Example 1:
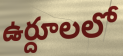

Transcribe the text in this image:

ఉర్దూలలో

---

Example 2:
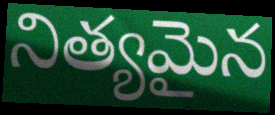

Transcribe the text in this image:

నిత్యమైన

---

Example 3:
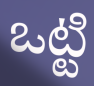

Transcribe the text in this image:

ఒట్టి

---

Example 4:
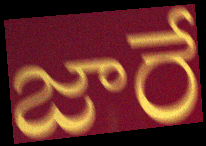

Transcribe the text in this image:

జారే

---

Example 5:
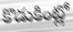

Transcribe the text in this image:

కొడుకింట్లో